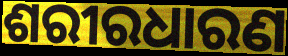
ଶରୀରଧାରଣ